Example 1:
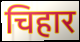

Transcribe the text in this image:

चिहार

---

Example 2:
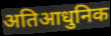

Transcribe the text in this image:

अतिआधुनिक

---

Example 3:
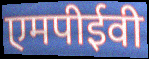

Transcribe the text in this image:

एमपीईवी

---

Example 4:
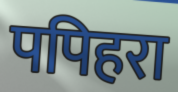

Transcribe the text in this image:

पपिहरा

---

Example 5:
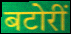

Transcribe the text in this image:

बटोरीं